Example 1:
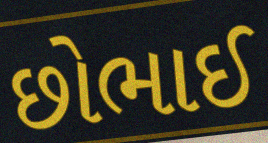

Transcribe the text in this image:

છોભાઈ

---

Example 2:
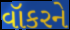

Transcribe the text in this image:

વૉકરને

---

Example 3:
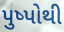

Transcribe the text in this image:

પુષ્પોથી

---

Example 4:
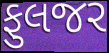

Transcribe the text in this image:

ફુલજર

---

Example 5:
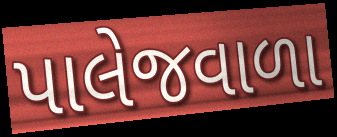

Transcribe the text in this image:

પાલેજવાળા